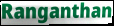
Ranganthan